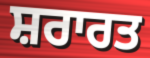
ਸ਼ਰਾਰਤ